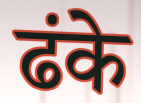
ढंके